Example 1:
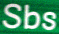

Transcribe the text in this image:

Sbs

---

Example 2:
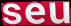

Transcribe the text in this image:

seu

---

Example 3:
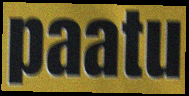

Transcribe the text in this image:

paatu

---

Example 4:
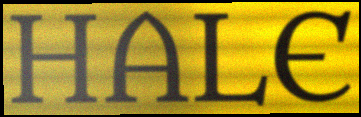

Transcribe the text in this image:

HALE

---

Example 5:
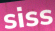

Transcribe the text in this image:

siss